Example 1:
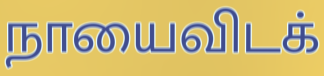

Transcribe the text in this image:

நாயைவிடக்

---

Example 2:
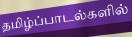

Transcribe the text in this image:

தமிழ்ப்பாடல்களில்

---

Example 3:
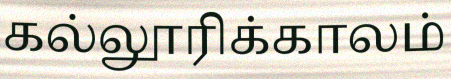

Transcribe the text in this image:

கல்லூரிக்காலம்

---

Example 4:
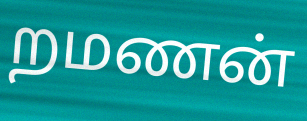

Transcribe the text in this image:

றமணன்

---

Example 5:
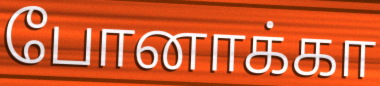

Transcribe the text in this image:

போனாக்கா